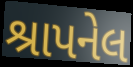
શ્રાપનેલ